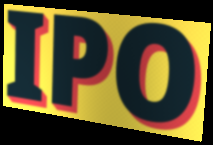
IPO